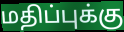
மதிப்புக்கு